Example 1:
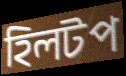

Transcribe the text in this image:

হিলটপ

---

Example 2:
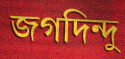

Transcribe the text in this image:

জগদিন্দু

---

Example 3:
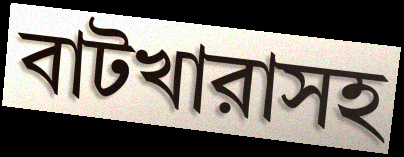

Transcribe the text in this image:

বাটখারাসহ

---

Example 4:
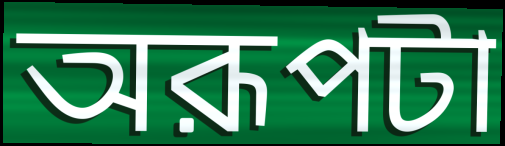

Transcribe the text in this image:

অরূপটা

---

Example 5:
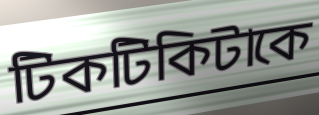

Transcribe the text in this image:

টিকটিকিটাকে